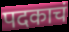
पदकाचं